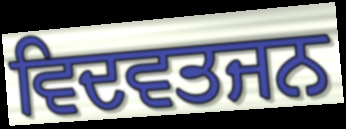
ਵਿਦਵਤਜਨ